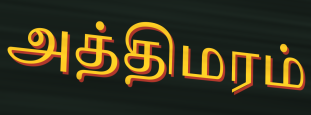
அத்திமரம்